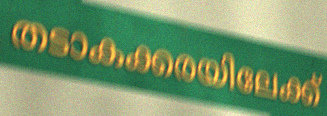
തടാകക്കരയിലേക്ക്